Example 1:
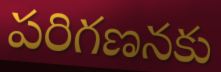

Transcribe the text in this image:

పరిగణనకు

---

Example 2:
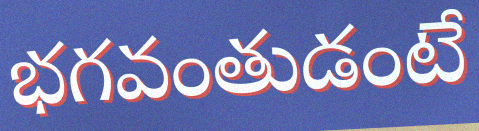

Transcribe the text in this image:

భగవంతుడంటే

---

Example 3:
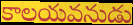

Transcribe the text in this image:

కాలయవనుడు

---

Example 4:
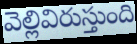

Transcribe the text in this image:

వెల్లివిరుస్తుంది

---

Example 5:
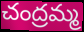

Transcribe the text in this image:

చంద్రమ్మ